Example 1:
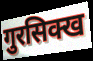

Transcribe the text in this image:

गुरसिक्ख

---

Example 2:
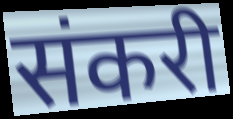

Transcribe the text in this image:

संकरी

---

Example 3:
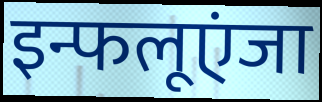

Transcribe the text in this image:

इन्फलूएंजा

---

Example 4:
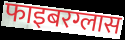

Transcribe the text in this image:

फाइबरग्लास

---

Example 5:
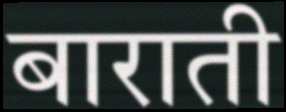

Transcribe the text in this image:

बाराती